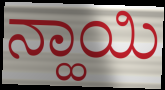
ನ್ಹಾಯಿ